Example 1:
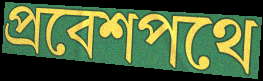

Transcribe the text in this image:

প্রবেশপথে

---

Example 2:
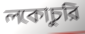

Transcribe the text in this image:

লকোচুরি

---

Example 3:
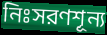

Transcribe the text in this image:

নিঃসরণশূন্য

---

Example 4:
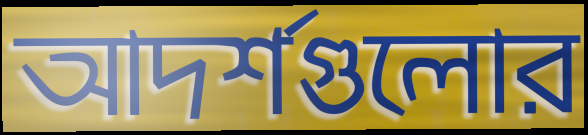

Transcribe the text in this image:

আদর্শগুলোর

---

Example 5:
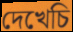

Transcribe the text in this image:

দেখেচি